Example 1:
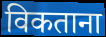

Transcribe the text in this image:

विकताना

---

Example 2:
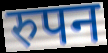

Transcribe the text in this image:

रुपन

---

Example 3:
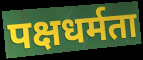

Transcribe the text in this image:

पक्षधर्मता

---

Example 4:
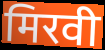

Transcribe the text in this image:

मिरवी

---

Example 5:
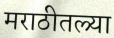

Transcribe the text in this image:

मराठीतल्या